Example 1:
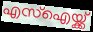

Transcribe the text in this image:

എസ്ഐയ്ക്ക്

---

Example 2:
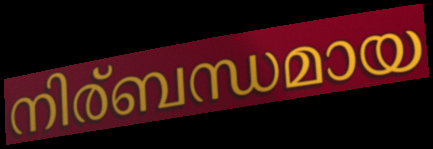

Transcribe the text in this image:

നിര്ബന്ധമായ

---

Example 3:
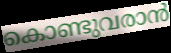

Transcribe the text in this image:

കൊണ്ടുവരാൻ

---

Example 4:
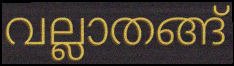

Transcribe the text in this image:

വല്ലാതങ്ങ്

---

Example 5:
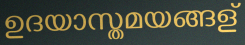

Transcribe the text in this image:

ഉദയാസ്തമയങ്ങള്